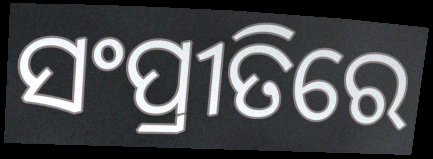
ସଂପ୍ରୀତିରେ